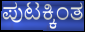
ಪುಟಕ್ಕಿಂತ